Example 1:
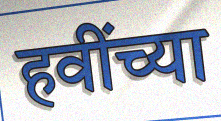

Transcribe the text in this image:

हवींच्या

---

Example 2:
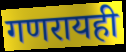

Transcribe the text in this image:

गणरायही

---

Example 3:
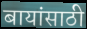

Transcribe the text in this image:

बायांसाठी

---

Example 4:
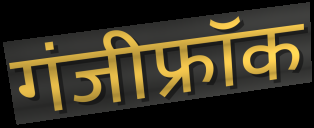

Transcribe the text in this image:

गंजीफ्रॉक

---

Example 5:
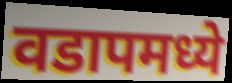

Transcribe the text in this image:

वडापमध्ये